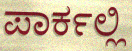
ಪಾರ್ಕಲ್ಲಿ